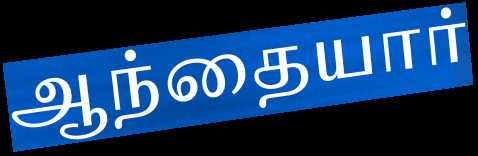
ஆந்தையார்